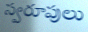
స్వరూపులు